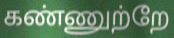
கண்ணுற்றே